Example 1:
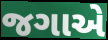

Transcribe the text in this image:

જગાએ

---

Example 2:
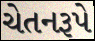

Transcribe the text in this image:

ચેતનરૂપે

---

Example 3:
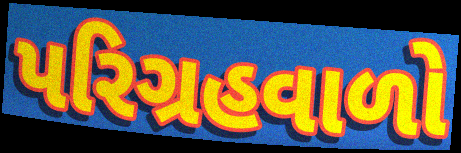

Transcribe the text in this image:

પરિગ્રહવાળો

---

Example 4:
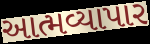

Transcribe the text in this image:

આત્મવ્યાપાર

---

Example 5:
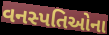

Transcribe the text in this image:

વનસ્પતિઓના